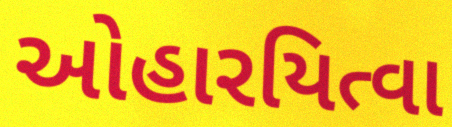
ઓહારયિત્વા